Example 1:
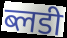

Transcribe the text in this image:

ब्लडी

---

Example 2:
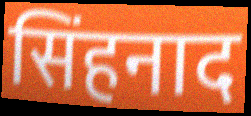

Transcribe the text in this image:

सिंहनाद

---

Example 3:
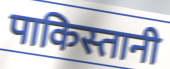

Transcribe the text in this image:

पाकिस्‍तानी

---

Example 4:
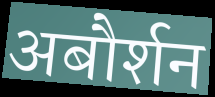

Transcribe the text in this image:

अबौर्शन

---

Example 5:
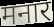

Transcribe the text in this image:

मनार